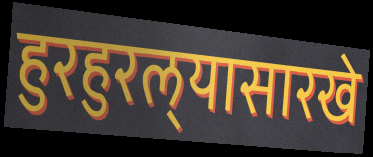
हुरहुरल्यासारखे